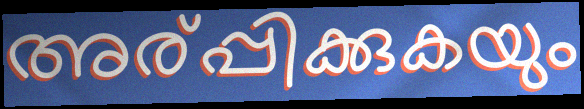
അര്പ്പിക്കുകയും